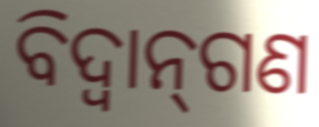
ବିଦ୍ୱାନ୍‌ଗଣ